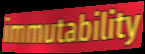
immutability